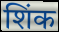
शिंक